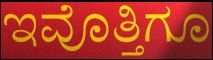
ಇವೊತ್ತಿಗೂ